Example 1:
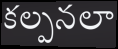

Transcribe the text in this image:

కల్పనలా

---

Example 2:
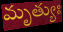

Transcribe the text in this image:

మృత్యుః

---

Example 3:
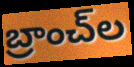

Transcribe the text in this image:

బ్రాంచ్‌ల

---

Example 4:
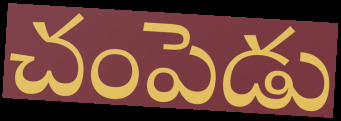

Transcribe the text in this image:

చంపెడు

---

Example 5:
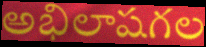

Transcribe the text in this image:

అభిలాషగల